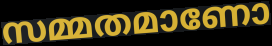
സമ്മതമാണോ